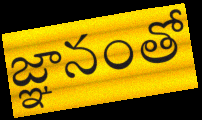
జ్ఞానంతో